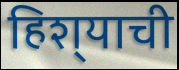
हिश्याची